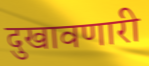
दुखावणारी